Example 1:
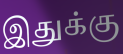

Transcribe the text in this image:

இதுக்கு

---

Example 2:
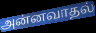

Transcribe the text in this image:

அன்னவாதல்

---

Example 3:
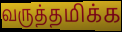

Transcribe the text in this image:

வருத்தமிக்க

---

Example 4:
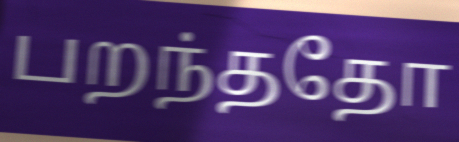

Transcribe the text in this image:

பறந்ததோ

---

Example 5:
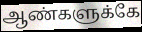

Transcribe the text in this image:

ஆண்களுக்கே